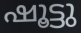
ഷൂട്ടു